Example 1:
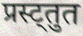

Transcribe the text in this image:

प्रस्ट्तुत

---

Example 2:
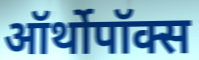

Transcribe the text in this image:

ऑर्थोपॉक्स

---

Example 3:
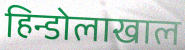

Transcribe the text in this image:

हिन्डोलाखाल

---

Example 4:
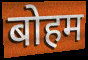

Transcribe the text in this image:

बोहम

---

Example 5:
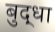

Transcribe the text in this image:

बुद्धा